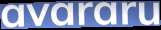
avararu